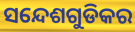
ସନ୍ଦେଶଗୁଡିକର